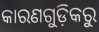
କାରଣଗୁଡ଼ିକରୁ